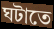
ঘটাতে